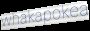
whakapokea